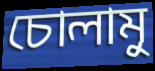
চোলামু